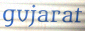
gujarat